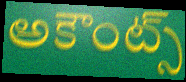
అకౌంట్స్